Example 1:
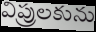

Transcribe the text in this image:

విప్రులకును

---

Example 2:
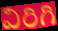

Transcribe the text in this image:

విరిగి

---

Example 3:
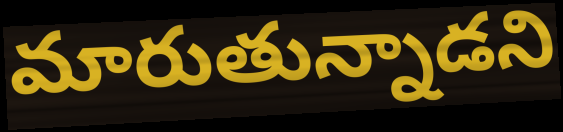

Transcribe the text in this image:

మారుతున్నాడని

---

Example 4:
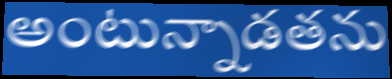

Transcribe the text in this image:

అంటున్నాడతను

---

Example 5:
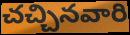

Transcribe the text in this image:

చచ్చినవారి